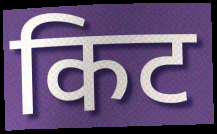
किट